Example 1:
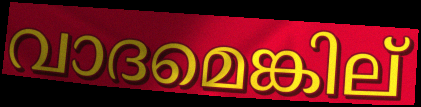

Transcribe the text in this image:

വാദമെങ്കില്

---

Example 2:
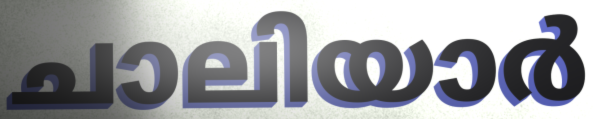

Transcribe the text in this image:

ചാലിയാർ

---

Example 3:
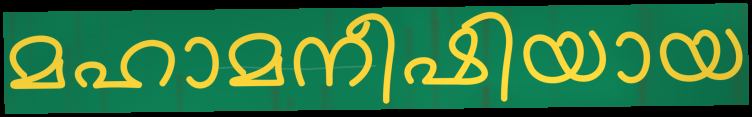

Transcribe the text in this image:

മഹാമനീഷിയായ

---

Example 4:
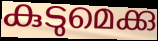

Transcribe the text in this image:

കുടുമെക്കു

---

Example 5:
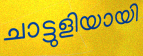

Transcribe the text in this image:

ചാട്ടുളിയായി